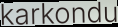
karkondu